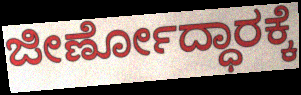
ಜೀರ್ಣೋದ್ಧಾರಕ್ಕೆ